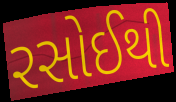
રસોઈથી